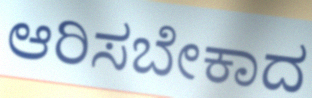
ಆರಿಸಬೇಕಾದ